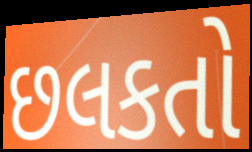
છલકતો